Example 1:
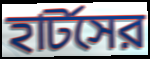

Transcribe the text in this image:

হার্টসের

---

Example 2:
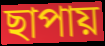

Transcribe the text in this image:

ছাপায়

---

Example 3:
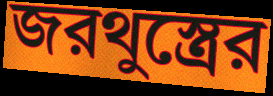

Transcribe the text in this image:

জরথুস্ত্রের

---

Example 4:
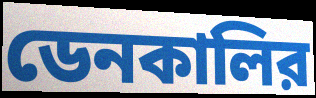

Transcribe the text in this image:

ডেনকালির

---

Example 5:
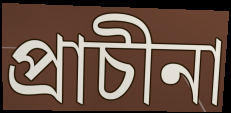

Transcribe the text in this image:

প্রাচীনা